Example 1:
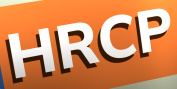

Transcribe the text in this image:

HRCP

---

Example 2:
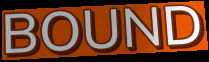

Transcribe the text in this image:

BOUND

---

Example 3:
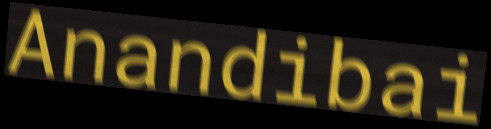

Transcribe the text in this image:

Anandibai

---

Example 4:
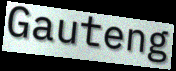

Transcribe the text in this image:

Gauteng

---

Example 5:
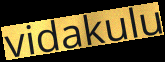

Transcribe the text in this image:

vidakulu